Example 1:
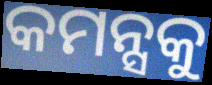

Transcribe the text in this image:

କମନ୍ସକୁ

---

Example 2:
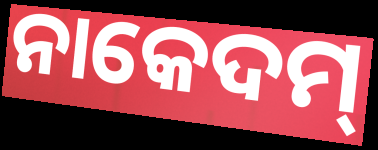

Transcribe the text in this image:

ନାକେଦମ୍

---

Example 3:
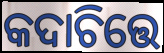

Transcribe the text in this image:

କଦାଚିତ୍ତେ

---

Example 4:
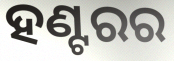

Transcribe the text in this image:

ହଣ୍ଟରର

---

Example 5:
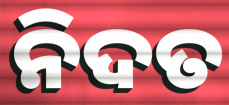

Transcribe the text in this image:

ନିଦତ